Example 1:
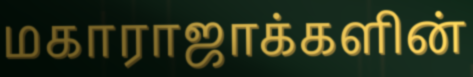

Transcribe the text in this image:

மகாராஜாக்களின்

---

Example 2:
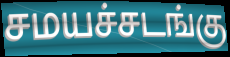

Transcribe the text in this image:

சமயச்சடங்கு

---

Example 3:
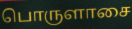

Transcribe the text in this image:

பொருளாசை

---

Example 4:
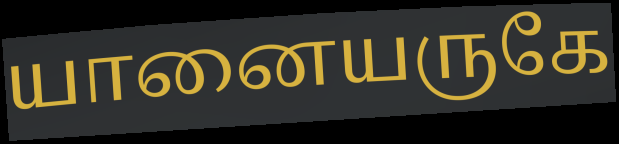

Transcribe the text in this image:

யானையருகே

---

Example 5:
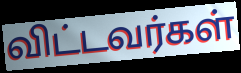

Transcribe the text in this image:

விட்டவர்கள்